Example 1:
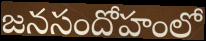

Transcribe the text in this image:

జనసందోహంలో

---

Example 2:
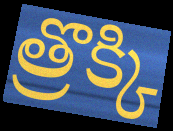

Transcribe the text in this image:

త్రొక్కి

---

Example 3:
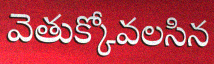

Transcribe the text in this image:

వెతుక్కోవలసిన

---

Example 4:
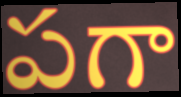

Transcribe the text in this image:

పగా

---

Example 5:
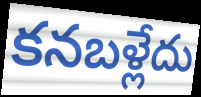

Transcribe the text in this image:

కనబళ్లేదు